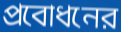
প্রবোধনের